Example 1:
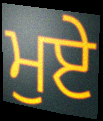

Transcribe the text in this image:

ਮੁਏ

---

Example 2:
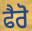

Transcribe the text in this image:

ਫੈਰੋ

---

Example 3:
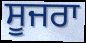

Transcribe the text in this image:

ਸੂਜਰਾ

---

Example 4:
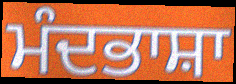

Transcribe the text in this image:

ਮੰਦਭਾਸ਼ਾ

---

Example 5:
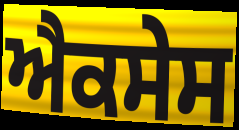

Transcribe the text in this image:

ਐਕਸੇਸ